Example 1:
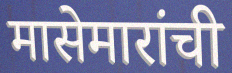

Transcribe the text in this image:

मासेमारांची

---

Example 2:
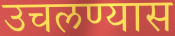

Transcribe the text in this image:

उचलण्यास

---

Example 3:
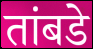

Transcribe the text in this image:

तांबडे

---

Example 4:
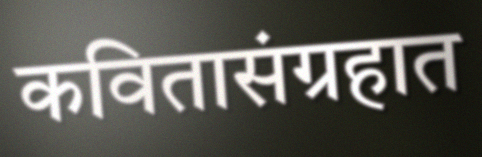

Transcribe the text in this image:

कवितासंग्रहात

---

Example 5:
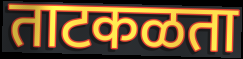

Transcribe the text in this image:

ताटकळता